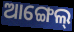
ଆଙ୍ଗେଲ୍